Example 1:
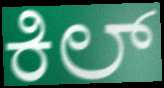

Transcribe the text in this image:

ಕಿಲ್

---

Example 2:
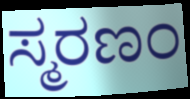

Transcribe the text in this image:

ಸ್ಮರಣಂ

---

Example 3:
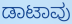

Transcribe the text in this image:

ಡಾಟಾವು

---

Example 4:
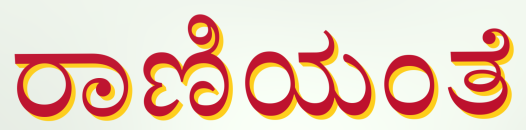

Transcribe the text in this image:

ರಾಣಿಯಂತೆ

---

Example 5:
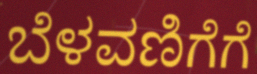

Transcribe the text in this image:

ಬೆಳವಣಿಗೆಗೆ